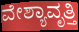
ವೇಶ್ಯಾವೃತ್ತಿ